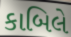
કાબિલે